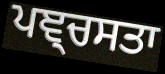
ਪਞ੍ਚਸਤਾ